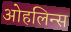
ओहलिन्स